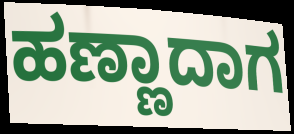
ಹಣ್ಣಾದಾಗ